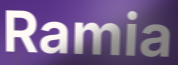
Ramia